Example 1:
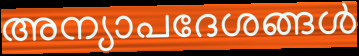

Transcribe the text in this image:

അന്യാപദേശങ്ങൾ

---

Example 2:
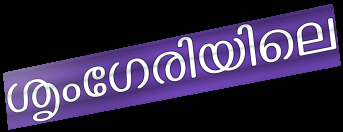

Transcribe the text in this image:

ശൃംഗേരിയിലെ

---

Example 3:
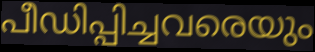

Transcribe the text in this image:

പീഡിപ്പിച്ചവരെയും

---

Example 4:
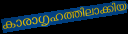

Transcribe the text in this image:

കാരാഗൃഹത്തിലാക്കിയ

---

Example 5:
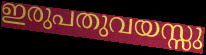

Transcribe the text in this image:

ഇരുപതുവയസ്സു